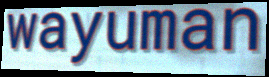
wayuman